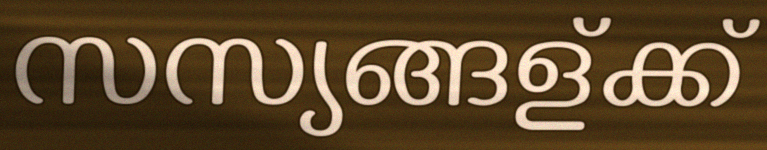
സസ്യങ്ങള്ക്ക്